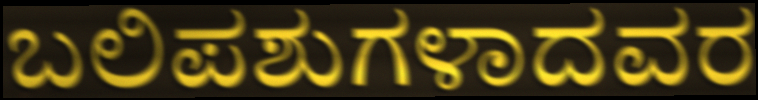
ಬಲಿಪಶುಗಳಾದವರ